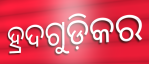
ହ୍ରଦଗୁଡ଼ିକର